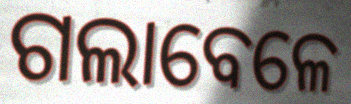
ଗଲାବେଳେ